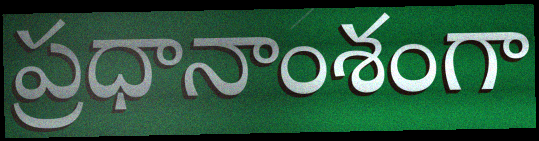
ప్రధానాంశంగా